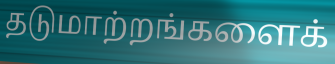
தடுமாற்றங்களைக்